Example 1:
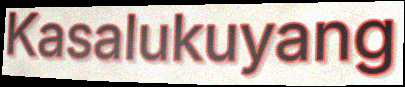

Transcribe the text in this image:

Kasalukuyang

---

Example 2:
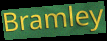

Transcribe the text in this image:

Bramley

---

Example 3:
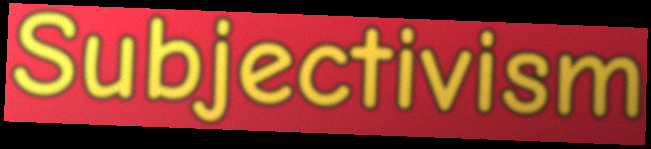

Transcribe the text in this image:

Subjectivism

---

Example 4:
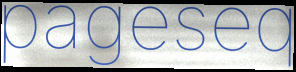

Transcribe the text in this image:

pageseq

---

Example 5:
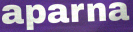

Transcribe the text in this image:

aparna